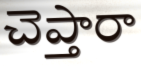
చెప్తారా